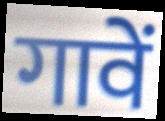
गावें